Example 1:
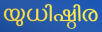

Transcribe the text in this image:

യുധിഷ്ഠിര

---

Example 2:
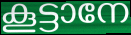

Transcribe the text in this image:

കൂട്ടാനേ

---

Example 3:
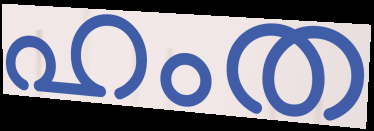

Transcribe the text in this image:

ഹംത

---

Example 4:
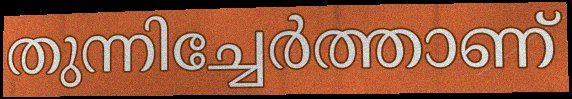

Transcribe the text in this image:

തുന്നിച്ചേർത്താണ്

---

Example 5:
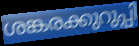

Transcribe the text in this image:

ശങ്കരക്കുറുപ്പി